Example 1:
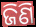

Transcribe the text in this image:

ଜିଣି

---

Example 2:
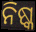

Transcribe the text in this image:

ନିଷ୍କ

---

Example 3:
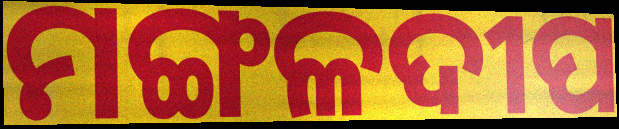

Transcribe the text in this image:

ମଙ୍ଗଳଦୀପ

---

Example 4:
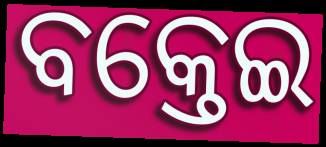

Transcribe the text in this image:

ବକ୍ତେଇ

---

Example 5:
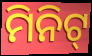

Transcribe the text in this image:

ମିନିଟ୍